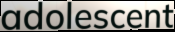
adolescent